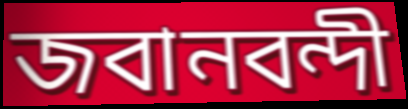
জবানবন্দী